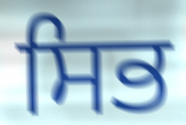
ਸਿਭ